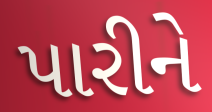
પારીને